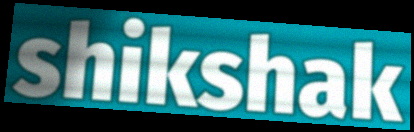
shikshak